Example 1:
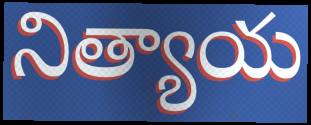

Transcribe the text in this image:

నిత్యాయ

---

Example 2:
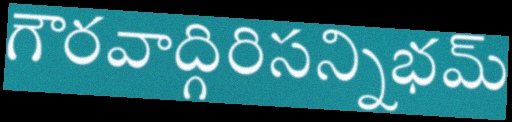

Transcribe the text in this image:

గౌరవాద్గిరిసన్నిభమ్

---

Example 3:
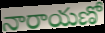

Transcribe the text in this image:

నారాయణో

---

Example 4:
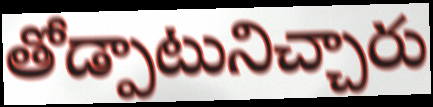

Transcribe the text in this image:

తోడ్పాటునిచ్చారు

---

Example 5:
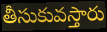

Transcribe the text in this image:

తీసుకువస్తారు